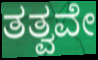
ತತ್ವವೇ